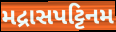
મદ્રાસપટ્ટિનમ